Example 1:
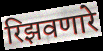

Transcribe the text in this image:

रिझवणारे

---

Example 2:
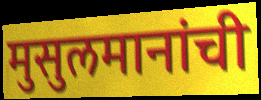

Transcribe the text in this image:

मुसुलमानांची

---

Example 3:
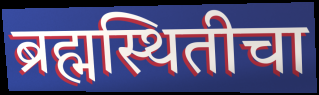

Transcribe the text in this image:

ब्रह्मस्थितीचा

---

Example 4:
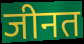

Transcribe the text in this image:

जीनत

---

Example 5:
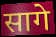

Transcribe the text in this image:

सागे